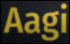
Aagi